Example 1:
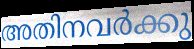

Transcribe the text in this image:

അതിനവർക്കു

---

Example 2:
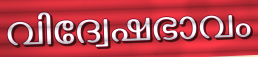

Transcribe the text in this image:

വിദ്വേഷഭാവം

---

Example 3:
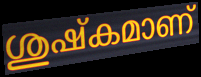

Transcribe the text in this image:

ശുഷ്‌കമാണ്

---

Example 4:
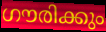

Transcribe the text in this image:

ഗൗരിക്കും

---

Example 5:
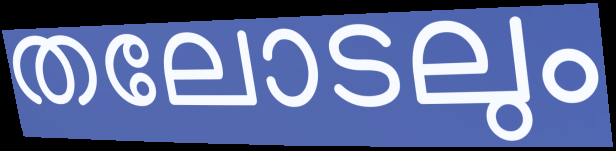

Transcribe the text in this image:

തലോടലും